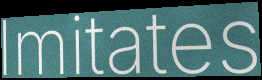
Imitates